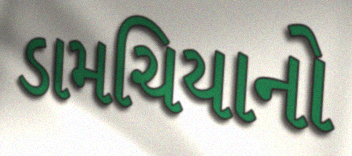
ડામચિયાનો